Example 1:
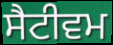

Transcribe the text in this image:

ਸੈਟੀਵਮ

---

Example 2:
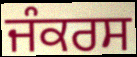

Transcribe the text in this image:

ਜੰਕਰਸ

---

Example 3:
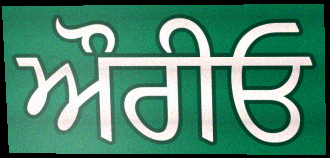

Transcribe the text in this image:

ਔਰੀਓ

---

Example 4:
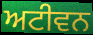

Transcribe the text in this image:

ਅਟੀਵਨ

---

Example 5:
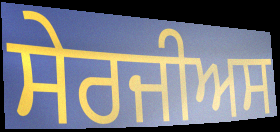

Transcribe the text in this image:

ਸੇਰਜੀਅਸ